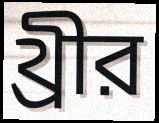
থ্রীর